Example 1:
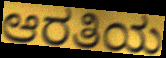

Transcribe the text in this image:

ಆರತಿಯ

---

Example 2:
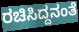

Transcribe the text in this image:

ರಚಿಸಿದ್ದನಂತೆ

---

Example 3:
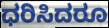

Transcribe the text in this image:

ಧರಿಸಿದರೂ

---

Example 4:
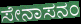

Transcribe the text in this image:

ಸೇನಾಸನಂ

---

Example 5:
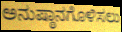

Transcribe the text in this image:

ಅನುಷ್ಠಾನಗೊಳಿಸಲು